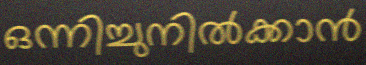
ഒന്നിച്ചുനിൽക്കാൻ